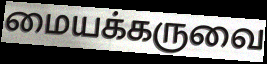
மையக்கருவை